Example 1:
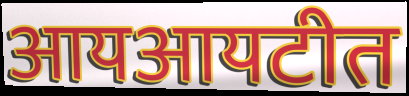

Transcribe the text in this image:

आयआयटीत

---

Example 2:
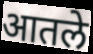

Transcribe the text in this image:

आतले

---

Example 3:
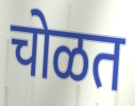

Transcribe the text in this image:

चोळत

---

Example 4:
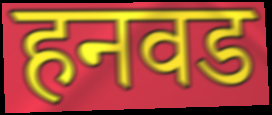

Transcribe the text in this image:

हनवड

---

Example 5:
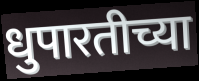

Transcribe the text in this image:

धुपारतीच्या